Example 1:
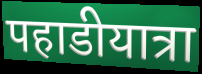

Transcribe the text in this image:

पहाडीयात्रा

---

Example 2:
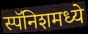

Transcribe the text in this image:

स्पॅनिशमध्ये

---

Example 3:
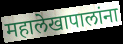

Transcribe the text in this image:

महालेखापालांना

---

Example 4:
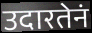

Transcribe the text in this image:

उदारतेनं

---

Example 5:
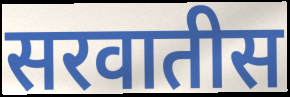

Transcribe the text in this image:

सरवातीस